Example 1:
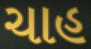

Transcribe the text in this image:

ચાહ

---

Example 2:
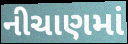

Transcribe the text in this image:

નીચાણમાં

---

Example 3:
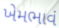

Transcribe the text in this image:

ખેમભાવં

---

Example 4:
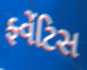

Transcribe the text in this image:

ફ્વેંટિસ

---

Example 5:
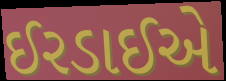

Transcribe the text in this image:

ઈરડાઈએ